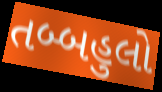
તબ્બહુલો